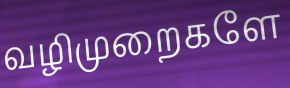
வழிமுறைகளே